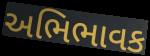
અભિભાવક